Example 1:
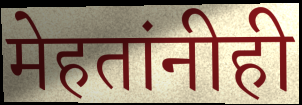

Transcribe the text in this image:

मेहतांनीही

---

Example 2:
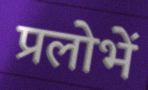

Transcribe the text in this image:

प्रलोभें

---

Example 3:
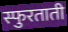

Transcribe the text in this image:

स्फुरताती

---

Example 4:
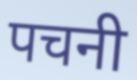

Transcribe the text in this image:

पचनी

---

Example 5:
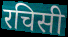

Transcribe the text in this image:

रचिसी